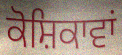
ਕੋਸ਼ਿਕਾਵਾਂ